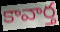
కావార్త